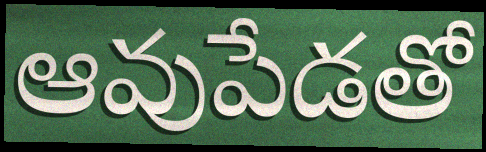
ఆవుపేడతో